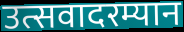
उत्सवादरम्यान